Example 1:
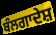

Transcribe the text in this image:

ਬੰਲਗਾਦੇਸ਼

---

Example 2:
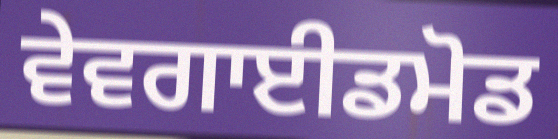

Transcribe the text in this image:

ਵੇਵਗਾਈਡਮੋਡ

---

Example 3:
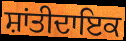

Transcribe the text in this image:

ਸ਼ਾਂਤੀਦਾਇਕ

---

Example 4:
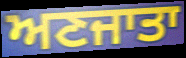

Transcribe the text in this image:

ਅਣਜਾਤਾ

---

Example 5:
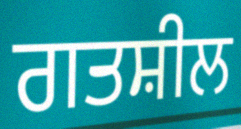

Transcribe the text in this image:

ਗਤਸ਼ੀਲ